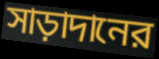
সাড়াদানের